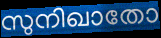
സുനിഖാതോ